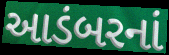
આડંબરનાં